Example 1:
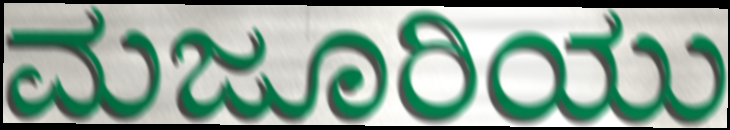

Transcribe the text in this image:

ಮಜೂರಿಯು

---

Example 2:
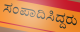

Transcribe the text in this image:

ಸಂಪಾದಿಸಿದ್ದರು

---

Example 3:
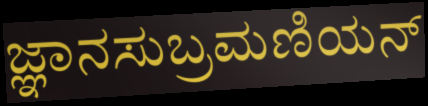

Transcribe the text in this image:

ಜ್ಞಾನಸುಬ್ರಮಣಿಯನ್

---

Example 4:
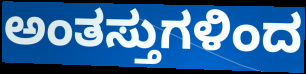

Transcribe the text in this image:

ಅಂತಸ್ತುಗಳಿಂದ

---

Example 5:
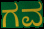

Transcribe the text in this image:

ಗವ